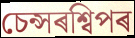
চেন্সৰশ্বিপৰ